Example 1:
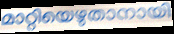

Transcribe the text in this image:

മാറ്റിയെഴുതാനായി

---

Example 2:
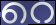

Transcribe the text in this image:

റെ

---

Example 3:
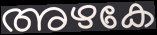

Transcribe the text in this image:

അഴകേ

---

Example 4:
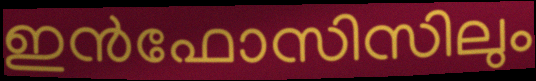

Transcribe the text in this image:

ഇൻഫോസിസിലും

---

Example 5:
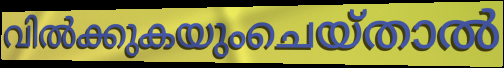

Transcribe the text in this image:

വിൽക്കുകയുംചെയ്താൽ